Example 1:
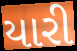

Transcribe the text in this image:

યારી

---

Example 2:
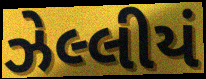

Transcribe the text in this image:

ઝેલ્લીયં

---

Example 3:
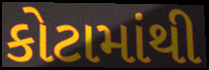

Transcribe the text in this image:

કોટામાંથી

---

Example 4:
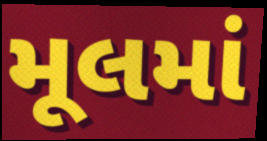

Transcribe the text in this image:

મૂલમાં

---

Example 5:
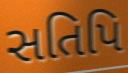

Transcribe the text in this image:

સતિપિ